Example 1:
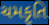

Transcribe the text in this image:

ચમકૃતિ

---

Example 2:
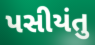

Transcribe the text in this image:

પસીયંતુ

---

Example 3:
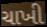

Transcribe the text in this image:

ચાખી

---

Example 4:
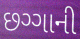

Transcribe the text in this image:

છગ્ગાની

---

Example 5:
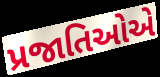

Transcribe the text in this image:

પ્રજાતિઓએ